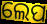
ଲେପ